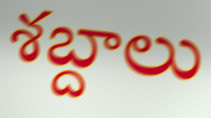
శబ్దాలు